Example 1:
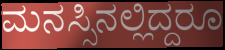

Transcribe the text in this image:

ಮನಸ್ಸಿನಲ್ಲಿದ್ದರೂ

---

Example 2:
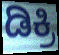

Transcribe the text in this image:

ಡಿಕ್ರಿ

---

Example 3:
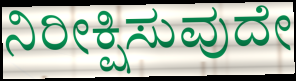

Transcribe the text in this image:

ನಿರೀಕ್ಷಿಸುವುದೇ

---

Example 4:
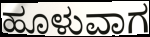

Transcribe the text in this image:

ಹೂಳುವಾಗ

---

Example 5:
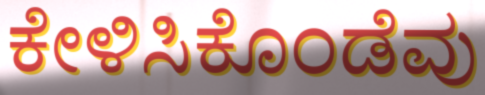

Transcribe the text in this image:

ಕೇಳಿಸಿಕೊಂಡೆವು